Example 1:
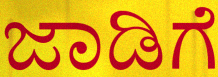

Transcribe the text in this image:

ಜಾಡಿಗೆ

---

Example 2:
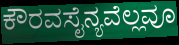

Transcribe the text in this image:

ಕೌರವಸೈನ್ಯವೆಲ್ಲವೂ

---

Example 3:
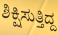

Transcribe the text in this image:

ಶಿಕ್ಷಿಸುತ್ತಿದ್ದ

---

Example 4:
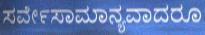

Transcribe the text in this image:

ಸರ್ವೇಸಾಮಾನ್ಯವಾದರೂ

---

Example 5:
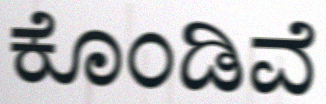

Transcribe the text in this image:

ಕೊಂಡಿವೆ